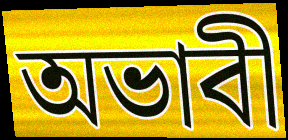
অভাবী